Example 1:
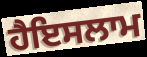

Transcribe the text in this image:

ਹੈਇਸਲਾਮ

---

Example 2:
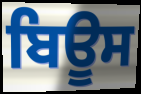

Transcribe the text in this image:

ਬਿਊਸ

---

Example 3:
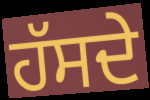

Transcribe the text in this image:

ਹੱਸਦੇ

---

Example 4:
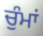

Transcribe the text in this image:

ਚੁੰਮਾਂ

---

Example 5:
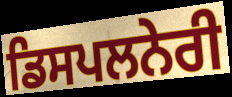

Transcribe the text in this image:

ਡਿਸਪਲਨੇਰੀ